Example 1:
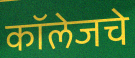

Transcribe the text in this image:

कॉलेजचे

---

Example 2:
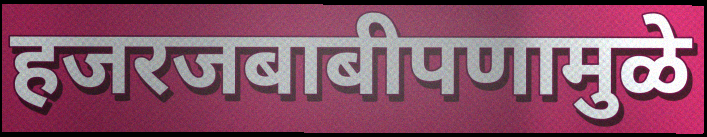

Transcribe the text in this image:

हजरजबाबीपणामुळे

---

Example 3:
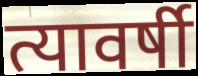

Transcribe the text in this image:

त्यावर्षी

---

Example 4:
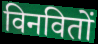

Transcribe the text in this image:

विनवितों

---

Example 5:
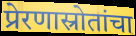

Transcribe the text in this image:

प्रेरणास्रोतांचा